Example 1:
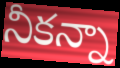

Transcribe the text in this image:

నీకన్నా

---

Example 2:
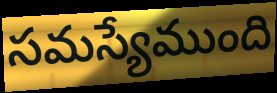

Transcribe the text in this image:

సమస్యేముంది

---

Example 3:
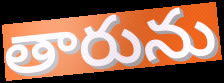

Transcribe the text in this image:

తారును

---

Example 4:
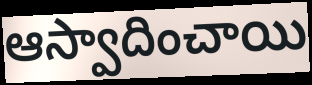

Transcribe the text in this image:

ఆస్వాదించాయి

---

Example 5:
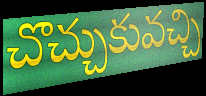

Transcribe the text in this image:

చొచ్చుకువచ్చి